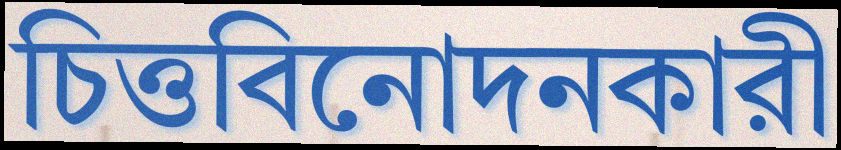
চিত্তবিনোদনকারী